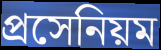
প্রসেনিয়ম